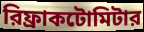
রিফ্রাকটোমিটার